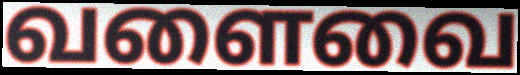
வளைவை